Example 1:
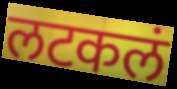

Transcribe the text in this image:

लटकलं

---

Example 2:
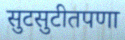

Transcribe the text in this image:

सुटसुटीतपणा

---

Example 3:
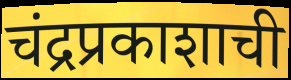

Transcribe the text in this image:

चंद्रप्रकाशाची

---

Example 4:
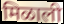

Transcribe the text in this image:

मिळाली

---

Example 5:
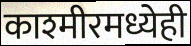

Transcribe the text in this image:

काश्‍मीरमध्येही